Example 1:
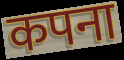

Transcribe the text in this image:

कपना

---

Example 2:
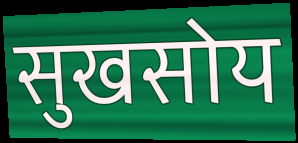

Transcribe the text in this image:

सुखसोय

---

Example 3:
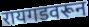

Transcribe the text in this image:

रायगडवरून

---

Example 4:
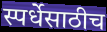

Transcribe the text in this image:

स्पर्धेसाठीच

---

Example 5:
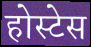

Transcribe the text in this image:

होस्टेस